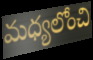
మధ్యలోంచి